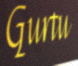
Gurtu